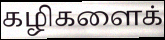
கழிகளைக்